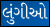
લુંગીઓ